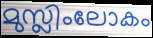
മുസ്ലിംലോകം